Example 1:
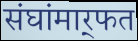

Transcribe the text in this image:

संघांमार्फत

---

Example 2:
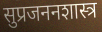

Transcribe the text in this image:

सुप्रजननशास्त्र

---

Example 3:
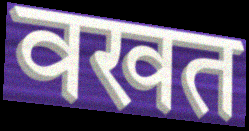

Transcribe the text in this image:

वखत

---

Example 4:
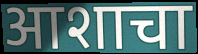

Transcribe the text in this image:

आशाचा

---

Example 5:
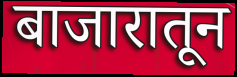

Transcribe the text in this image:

बाजारातून